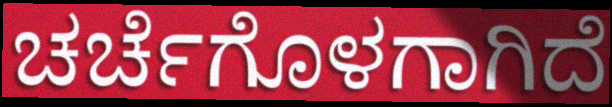
ಚರ್ಚೆಗೊಳಗಾಗಿದೆ